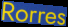
Rorres